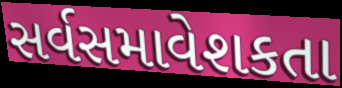
સર્વસમાવેશકતા